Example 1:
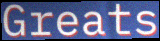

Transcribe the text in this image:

Greats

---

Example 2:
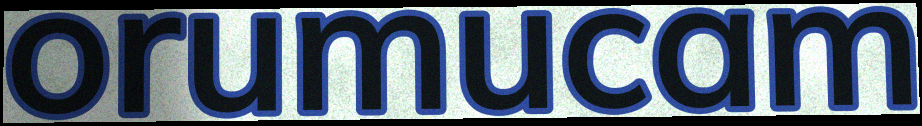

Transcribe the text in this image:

orumucam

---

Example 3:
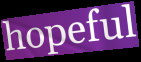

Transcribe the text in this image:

hopeful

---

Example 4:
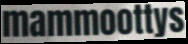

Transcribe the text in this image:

mammoottys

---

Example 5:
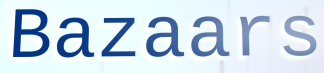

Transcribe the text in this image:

Bazaars